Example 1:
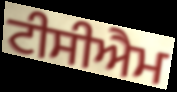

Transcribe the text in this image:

ਟੀਸੀਐਮ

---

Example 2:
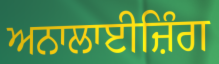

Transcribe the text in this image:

ਅਨਾਲਾਈਜ਼ਿੰਗ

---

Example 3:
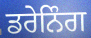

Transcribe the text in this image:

ਡਰੇਨਿੰਗ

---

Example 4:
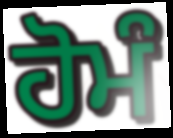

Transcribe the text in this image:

ਹੋਮੰ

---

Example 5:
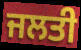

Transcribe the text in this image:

ਜਲਤੀ